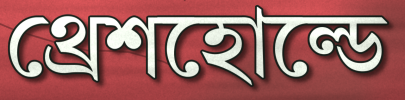
থ্রেশহোল্ডে